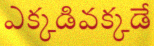
ఎక్కడివక్కడే